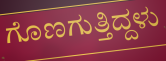
ಗೊಣಗುತ್ತಿದ್ದಳು